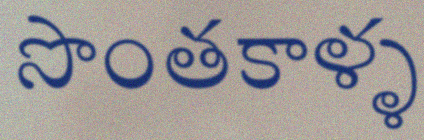
సొంతకాళ్ళ